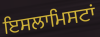
ਇਸਲਾਮਿਸਟਾਂ